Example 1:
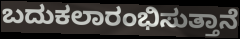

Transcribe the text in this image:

ಬದುಕಲಾರಂಭಿಸುತ್ತಾನೆ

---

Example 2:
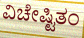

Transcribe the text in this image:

ವಿಚೇಷ್ಟಿತಂ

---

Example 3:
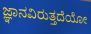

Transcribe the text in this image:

ಜ್ಞಾನವಿರುತ್ತದೆಯೋ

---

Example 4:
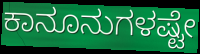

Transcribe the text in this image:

ಕಾನೂನುಗಳಷ್ಟೇ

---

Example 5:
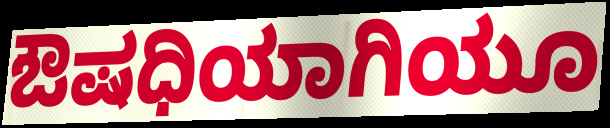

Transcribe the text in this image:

ಔಷಧಿಯಾಗಿಯೂ